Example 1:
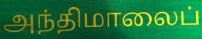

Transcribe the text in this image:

அந்திமாலைப்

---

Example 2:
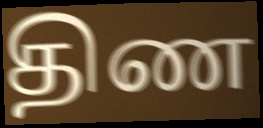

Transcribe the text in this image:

திண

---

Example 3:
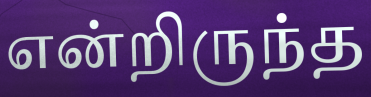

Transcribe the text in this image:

என்றிருந்த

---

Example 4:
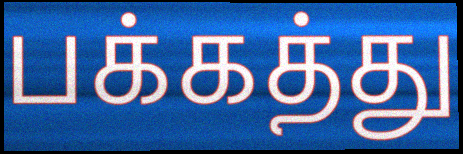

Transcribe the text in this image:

பக்கத்து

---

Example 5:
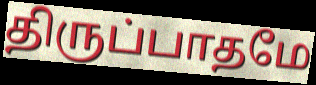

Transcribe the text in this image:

திருப்பாதமே